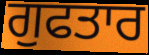
ਗੁਫਤਾਰ